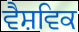
ਵੈਸ਼ਵਿਕ